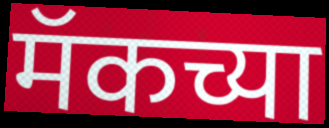
मॅकच्या